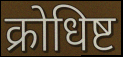
क्रोधिष्ट